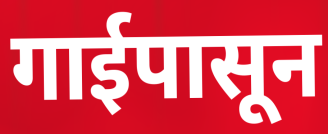
गाईपासून